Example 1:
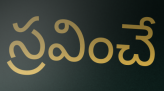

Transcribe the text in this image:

స్రవించే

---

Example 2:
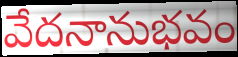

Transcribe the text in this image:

వేదనానుభవం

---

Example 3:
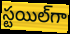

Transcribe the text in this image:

స్టయిల్‌గా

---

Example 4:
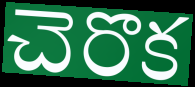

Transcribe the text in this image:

చెరొక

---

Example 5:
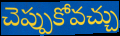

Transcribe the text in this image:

చెప్పుకోవచ్చు